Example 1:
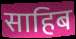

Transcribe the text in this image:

साहिब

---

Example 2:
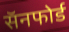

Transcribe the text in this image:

सॅनफोर्ड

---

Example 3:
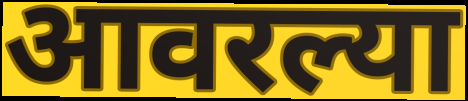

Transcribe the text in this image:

आवरल्या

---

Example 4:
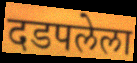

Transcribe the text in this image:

दडपलेला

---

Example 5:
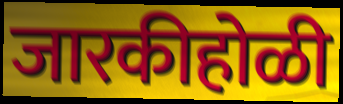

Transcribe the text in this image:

जारकीहोळी